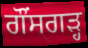
ਗੌਂਸਗੜ੍ਹ